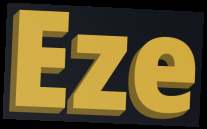
Eze